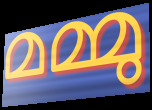
മമ്മു